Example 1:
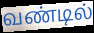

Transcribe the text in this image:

வண்டில்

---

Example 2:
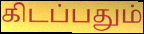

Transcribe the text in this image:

கிடப்பதும்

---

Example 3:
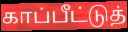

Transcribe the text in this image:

காப்பீட்டுத்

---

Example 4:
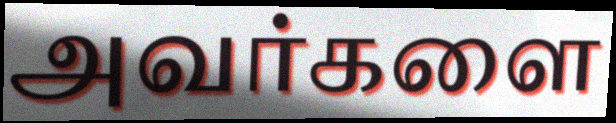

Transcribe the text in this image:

அவர்களை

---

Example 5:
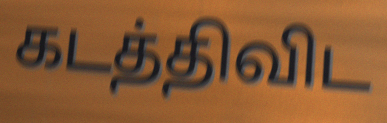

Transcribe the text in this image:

கடத்திவிட